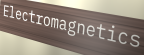
Electromagnetics